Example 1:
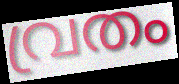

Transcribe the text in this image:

വ്രതം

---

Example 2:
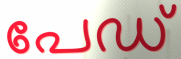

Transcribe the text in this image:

പേഡ്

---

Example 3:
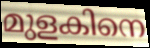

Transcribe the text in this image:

മുളകിനെ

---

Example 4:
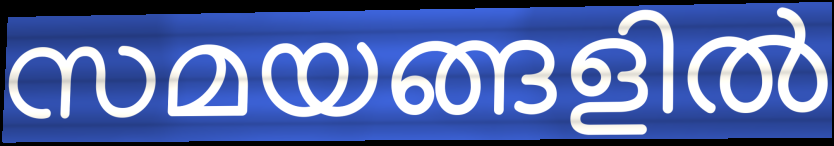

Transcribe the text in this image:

സമയങ്ങളിൽ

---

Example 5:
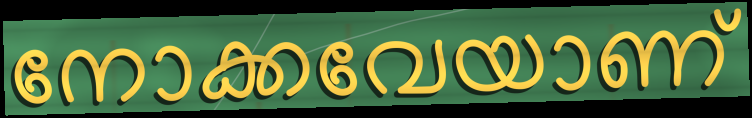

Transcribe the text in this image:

നോക്കവേയാണ്